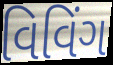
વિવિંગ